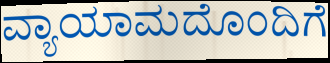
ವ್ಯಾಯಾಮದೊಂದಿಗೆ